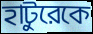
হাটুরেকে